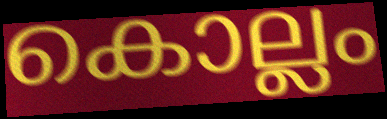
കൊല്ലം